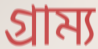
গ্ৰাম্য